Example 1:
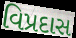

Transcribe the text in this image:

વિપ્રદાસ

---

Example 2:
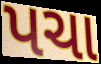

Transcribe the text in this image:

પચા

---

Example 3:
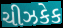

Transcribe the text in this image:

ચીઝકેક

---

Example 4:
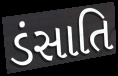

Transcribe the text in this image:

ડંસાતિ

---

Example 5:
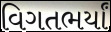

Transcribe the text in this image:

વિગતભર્યાં